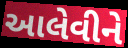
આલેવીને